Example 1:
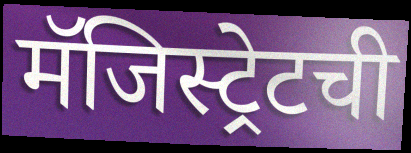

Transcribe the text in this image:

मॅजिस्ट्रेटची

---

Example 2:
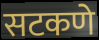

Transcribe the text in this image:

सटकणे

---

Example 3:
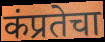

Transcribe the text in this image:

कंप्रतेचा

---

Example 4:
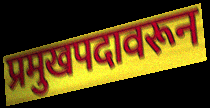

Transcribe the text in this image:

प्रमुखपदावरून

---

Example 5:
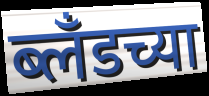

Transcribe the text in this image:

ब्लँडच्या